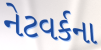
નેટવર્કના